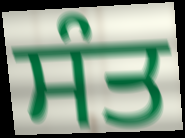
ਸੰਤ